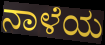
ನಾಳೆಯ